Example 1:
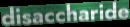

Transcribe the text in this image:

disaccharide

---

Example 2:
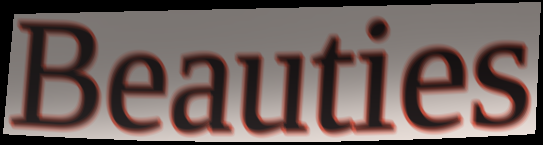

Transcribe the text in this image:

Beauties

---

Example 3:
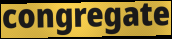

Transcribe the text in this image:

congregate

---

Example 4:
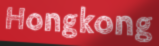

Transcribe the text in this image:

Hongkong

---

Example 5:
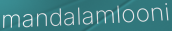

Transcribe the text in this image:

mandalamlooni